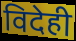
विदेही